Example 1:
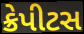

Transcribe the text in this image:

ક્રેપીટસ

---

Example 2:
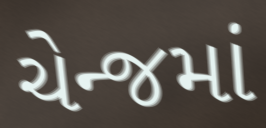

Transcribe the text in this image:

ચેન્જમાં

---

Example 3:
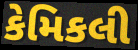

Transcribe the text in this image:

કેમિકલી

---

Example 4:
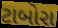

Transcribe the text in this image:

ટાબોરા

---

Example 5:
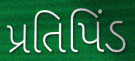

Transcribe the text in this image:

પ્રતિપિંડ